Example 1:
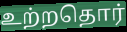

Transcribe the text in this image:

உற்றதொர்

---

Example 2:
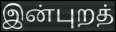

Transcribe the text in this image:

இன்புறத்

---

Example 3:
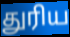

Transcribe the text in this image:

துரிய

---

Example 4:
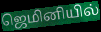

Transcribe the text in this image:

ஜெமினியில்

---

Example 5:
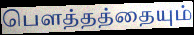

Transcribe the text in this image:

பெளத்தத்தையும்